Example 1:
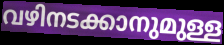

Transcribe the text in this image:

വഴിനടക്കാനുമുള്ള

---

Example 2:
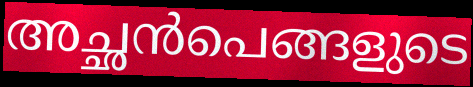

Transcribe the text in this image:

അച്ഛൻപെങ്ങളുടെ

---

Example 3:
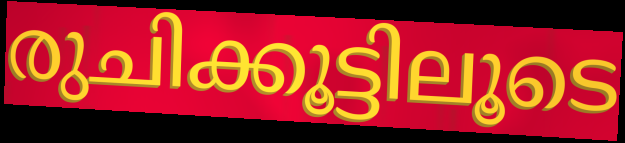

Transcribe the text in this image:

രുചിക്കൂട്ടിലൂടെ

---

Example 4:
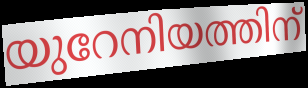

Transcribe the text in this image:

യുറേനിയത്തിന്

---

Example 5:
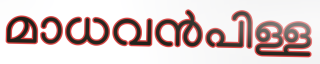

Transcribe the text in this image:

മാധവൻപിള്ള